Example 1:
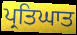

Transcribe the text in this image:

ਪ੍ਰਤਿਘਾਤ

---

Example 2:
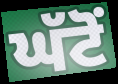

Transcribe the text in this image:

ਘੱਟੋਂ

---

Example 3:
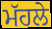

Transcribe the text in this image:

ਮੱਹਲੇ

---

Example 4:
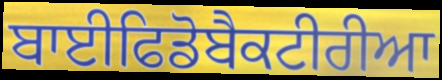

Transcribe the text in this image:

ਬਾਈਫਿਡੋਬੈਕਟੀਰੀਆ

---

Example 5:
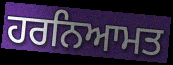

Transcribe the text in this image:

ਹਰਨਿਆਮਤ